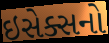
ઇસેક્સનો